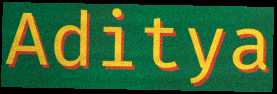
Aditya